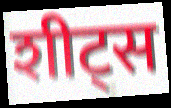
शीट्स